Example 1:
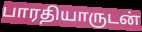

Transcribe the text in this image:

பாரதியாருடன்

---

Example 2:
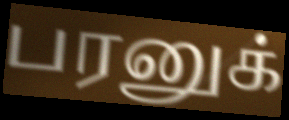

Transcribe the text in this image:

பரனுக்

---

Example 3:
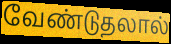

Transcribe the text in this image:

வேண்டுதலால்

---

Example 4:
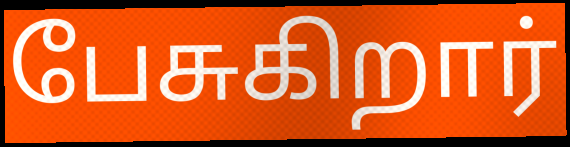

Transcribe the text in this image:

பேசுகிறார்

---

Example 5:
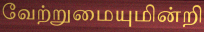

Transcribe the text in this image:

வேற்றுமையுமின்றி